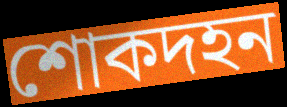
শোকদহন